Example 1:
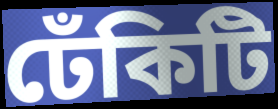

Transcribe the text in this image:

ঢেঁকিটি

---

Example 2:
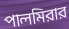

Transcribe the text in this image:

পালমিরার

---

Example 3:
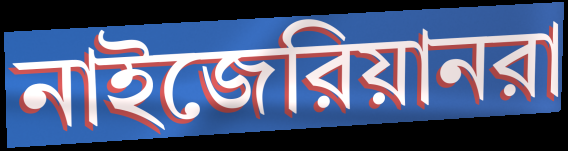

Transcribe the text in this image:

নাইজেরিয়ানরা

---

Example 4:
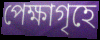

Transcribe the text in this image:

পেক্ষাগৃহে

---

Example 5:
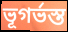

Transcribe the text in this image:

ভূগর্ভস্ত